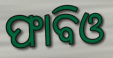
ଫାବିଓ